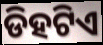
ଡିହଟିଏ